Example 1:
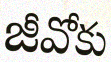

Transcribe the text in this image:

జీవోకు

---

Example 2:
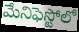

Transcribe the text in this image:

మేనిఫెస్టోలో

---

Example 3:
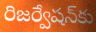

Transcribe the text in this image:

రిజర్వేషన్‌కు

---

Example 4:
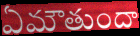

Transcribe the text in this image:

ఏమౌతుందా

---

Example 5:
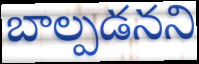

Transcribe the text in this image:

బాల్పడనని